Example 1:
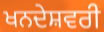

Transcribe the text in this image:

ਖਨਦੇਸ਼ਵਰੀ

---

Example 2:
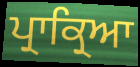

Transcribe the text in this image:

ਪ੍ਰਾਕ੍ਰਿਆ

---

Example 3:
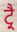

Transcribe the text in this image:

ਟ੍ਰੈ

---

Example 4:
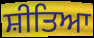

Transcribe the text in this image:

ਸ਼ੀਤਿਆ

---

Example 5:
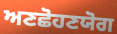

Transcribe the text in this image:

ਅਣਛੋਹਣਯੋਗ